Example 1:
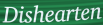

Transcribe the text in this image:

Dishearten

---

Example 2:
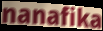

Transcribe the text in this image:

nanafika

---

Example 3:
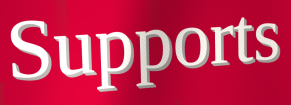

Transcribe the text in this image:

Supports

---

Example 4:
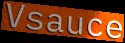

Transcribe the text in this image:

Vsauce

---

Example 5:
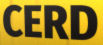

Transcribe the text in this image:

CERD